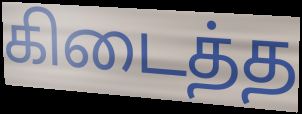
கிடைத்த